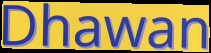
Dhawan